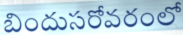
బిందుసరోవరంలో